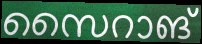
സൈറാങ്